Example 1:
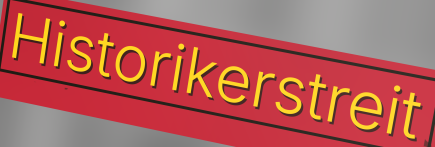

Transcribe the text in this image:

Historikerstreit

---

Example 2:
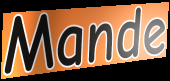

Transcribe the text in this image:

Mande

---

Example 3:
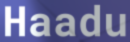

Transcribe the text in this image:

Haadu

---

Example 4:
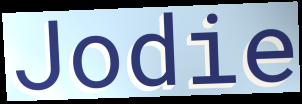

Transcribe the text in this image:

Jodie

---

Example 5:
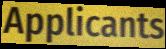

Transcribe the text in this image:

Applicants